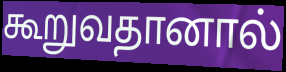
கூறுவதானால்